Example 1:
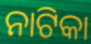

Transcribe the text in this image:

ନାଟିକା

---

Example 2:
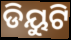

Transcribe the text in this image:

ଡିୟୁଟି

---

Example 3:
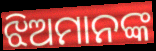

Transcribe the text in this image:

ଝିଅମାନଙ୍କ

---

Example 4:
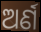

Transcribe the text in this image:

ଅର୍ଣ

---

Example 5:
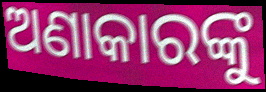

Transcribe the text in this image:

ଅଣାକାରଙ୍କୁ